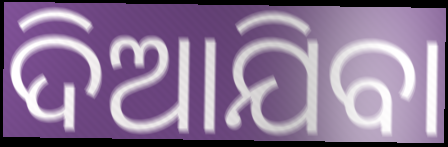
ଦିଆଯିବା